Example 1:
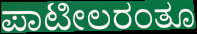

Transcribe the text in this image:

ಪಾಟೀಲರಂತೂ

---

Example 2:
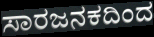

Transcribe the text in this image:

ಸಾರಜನಕದಿಂದ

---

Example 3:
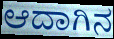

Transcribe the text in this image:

ಆದಾಗಿನ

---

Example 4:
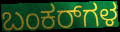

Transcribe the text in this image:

ಬಂಕರ್‌ಗಳ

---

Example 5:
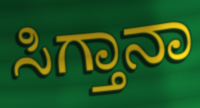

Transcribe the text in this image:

ಸಿಗ್ತಾನಾ